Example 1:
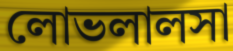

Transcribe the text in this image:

লোভলালসা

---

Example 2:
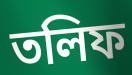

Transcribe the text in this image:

তলিফ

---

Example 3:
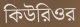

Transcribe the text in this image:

কিউরিওর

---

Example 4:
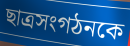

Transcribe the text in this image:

ছাত্রসংগঠনকে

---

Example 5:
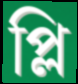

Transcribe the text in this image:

প্লি